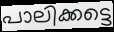
പാലിക്കട്ടെ